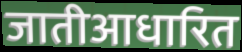
जातीआधारित